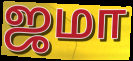
ஜமா